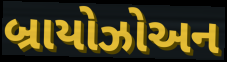
બ્રાયોઝોઅન